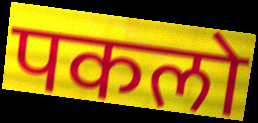
पकलो